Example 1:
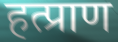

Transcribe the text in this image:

हत्प्राण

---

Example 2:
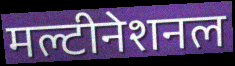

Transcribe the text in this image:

मल्टीनेशनल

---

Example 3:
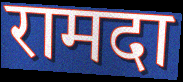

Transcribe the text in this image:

रामदा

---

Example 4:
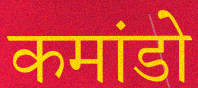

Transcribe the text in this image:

कमांडो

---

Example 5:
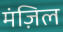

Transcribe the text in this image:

मंज़िल